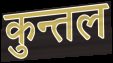
कुन्तल